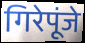
गिरेपूंजे